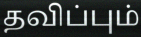
தவிப்பும்